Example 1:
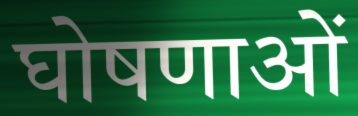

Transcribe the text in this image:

घोषणाओं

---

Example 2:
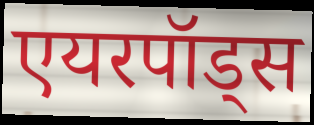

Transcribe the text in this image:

एयरपॉड्स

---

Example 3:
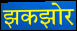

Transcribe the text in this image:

झकझोर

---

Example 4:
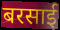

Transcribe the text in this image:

बरसाई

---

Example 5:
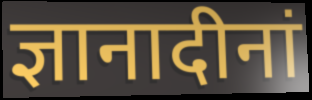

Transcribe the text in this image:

ज्ञानादीनां